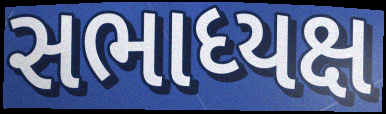
સભાધ્યક્ષ